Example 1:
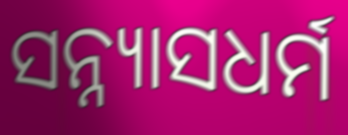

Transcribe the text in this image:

ସନ୍ନ୍ୟାସଧର୍ମ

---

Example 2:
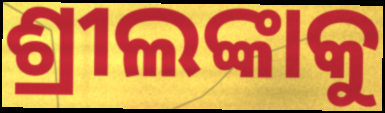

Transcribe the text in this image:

ଶ୍ରୀଲଙ୍କାକୁ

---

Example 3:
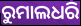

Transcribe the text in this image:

ରୁମାଲଧରି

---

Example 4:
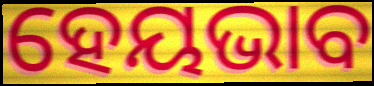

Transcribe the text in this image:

ହେୟଭାବ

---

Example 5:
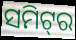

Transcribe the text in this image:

ସମିଟ୍‌ର